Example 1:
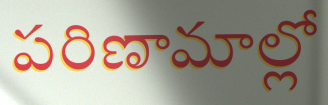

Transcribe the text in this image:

పరిణామాల్లో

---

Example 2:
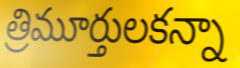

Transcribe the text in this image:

త్రిమూర్తులకన్నా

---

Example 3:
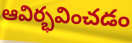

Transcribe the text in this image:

ఆవిర్భవించడం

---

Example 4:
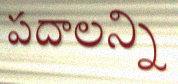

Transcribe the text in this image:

పదాలన్ని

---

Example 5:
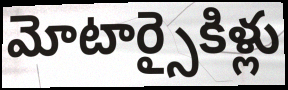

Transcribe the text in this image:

మోటార్సైకిళ్లు